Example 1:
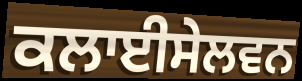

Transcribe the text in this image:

ਕਲਾਈਸੇਲਵਨ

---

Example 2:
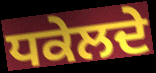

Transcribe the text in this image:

ਧਕੇਲਦੇ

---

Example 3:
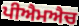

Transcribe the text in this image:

ਪੀਐਮਐਚ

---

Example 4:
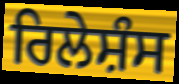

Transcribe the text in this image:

ਰਿਲੇਸ਼ੰਸ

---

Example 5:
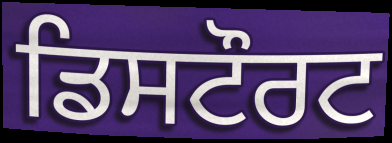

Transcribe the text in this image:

ਡਿਸਟੌਰਟ